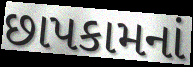
છાપકામનાં